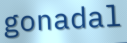
gonadal